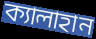
ক্যালাহান